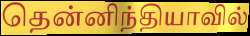
தென்னிந்தியாவில்